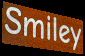
Smiley